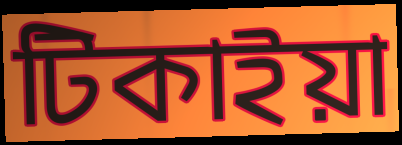
টিকাইয়া